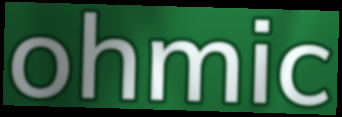
ohmic